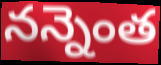
నన్నెంత